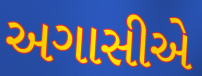
અગાસીએ